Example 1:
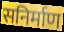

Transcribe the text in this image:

सनिर्माण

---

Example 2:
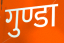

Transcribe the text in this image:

गुण्डा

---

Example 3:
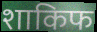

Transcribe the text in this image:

शाकिफ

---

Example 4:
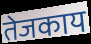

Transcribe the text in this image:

तेजकाय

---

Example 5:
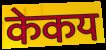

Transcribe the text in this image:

केकय